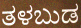
ತಳಬುಡ